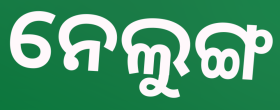
ନେଲୁଙ୍ଗ